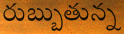
రుబ్బుతున్న